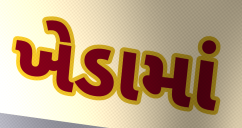
ખેડામાં